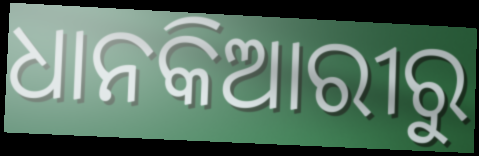
ଧାନକିଆରୀରୁ